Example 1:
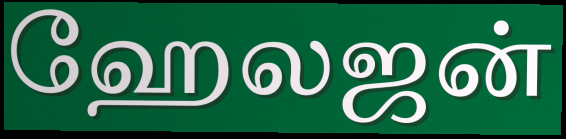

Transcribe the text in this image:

ஹேலஜன்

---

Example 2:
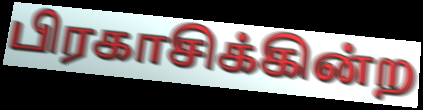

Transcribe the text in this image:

பிரகாசிக்கின்ற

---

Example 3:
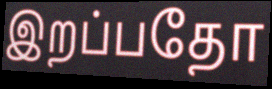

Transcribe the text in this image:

இறப்பதோ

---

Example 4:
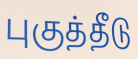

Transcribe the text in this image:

புகுத்தீடு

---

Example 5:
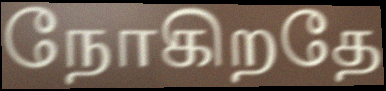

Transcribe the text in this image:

நோகிறதே